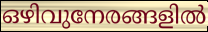
ഒഴിവുനേരങ്ങളിൽ